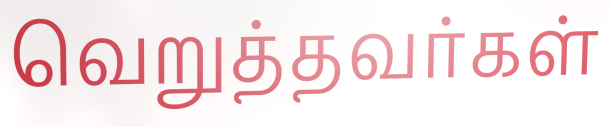
வெறுத்தவர்கள்